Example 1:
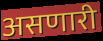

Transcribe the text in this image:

असणारी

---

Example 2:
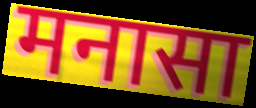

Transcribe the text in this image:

मनासा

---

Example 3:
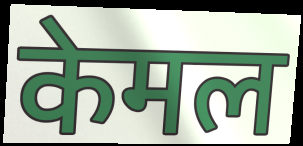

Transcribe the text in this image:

केमल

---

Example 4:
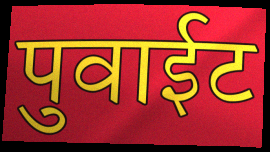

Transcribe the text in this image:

पुवाईट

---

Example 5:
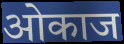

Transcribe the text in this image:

ओकाज